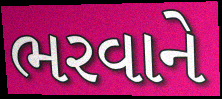
ભરવાને